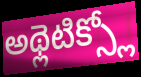
అథ్లెటిక్స్లో